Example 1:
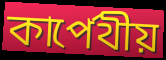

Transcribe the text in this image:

কার্পেথীয়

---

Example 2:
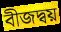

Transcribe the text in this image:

বীজদ্বয়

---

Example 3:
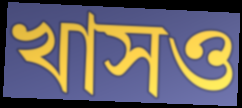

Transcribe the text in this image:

খাসও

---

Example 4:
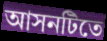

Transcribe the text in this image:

আসনটিতে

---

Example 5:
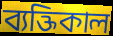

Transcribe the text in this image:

ব্যক্তিকাল